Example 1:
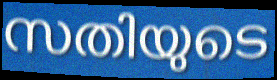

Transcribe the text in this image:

സതിയുടെ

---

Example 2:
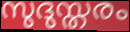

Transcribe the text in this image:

സുദുസ്തരം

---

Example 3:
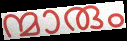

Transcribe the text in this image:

ന്മാരും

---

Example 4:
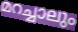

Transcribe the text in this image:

മറച്ചാലും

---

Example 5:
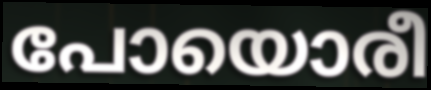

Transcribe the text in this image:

പോയൊരീ